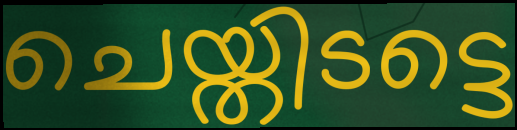
ചെയ്തിടട്ടെ